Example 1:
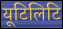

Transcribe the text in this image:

यूटिलिटि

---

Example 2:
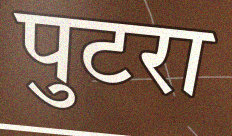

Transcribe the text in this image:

पुटरा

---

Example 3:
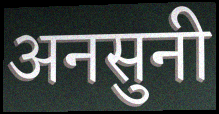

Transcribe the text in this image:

अनसुनी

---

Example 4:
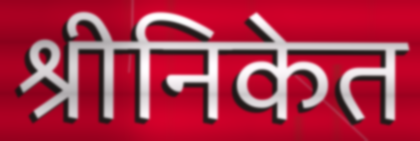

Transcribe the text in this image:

श्रीनिकेत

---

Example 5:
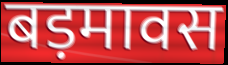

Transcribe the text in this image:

बड़मावस